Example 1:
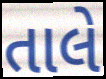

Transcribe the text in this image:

તાલે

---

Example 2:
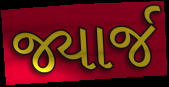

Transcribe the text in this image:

જ્યાર્જ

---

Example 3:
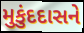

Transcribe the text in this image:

મુકુંદદાસને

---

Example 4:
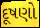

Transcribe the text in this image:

દૂષણો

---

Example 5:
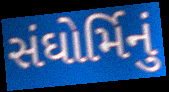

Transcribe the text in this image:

સંઘોર્મિનું